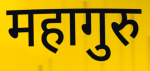
महागुरु